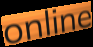
online